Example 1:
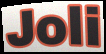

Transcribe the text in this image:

Joli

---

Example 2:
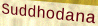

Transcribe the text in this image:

Suddhodana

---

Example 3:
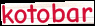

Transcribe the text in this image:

kotobar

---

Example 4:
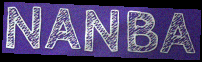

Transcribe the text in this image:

NANBA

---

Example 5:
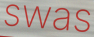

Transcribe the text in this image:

swas